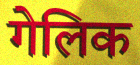
गेलिक